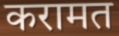
करामत